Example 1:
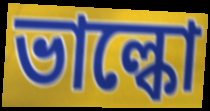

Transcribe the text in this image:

ভাল্কো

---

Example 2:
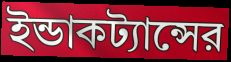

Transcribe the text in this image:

ইন্ডাকট্যান্সের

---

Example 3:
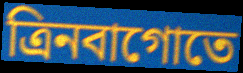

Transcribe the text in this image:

ত্রিনবাগোতে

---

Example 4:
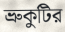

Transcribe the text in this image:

ভ্রুকুটির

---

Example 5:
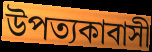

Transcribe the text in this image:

উপত্যকাবাসী